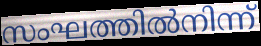
സംഘത്തിൽനിന്ന്